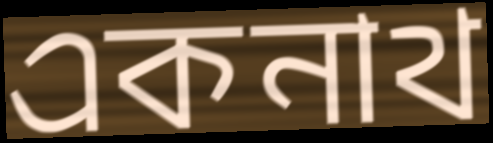
একনাথ